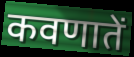
कवणातें